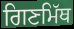
ਗਿਣਮਿੱਥ